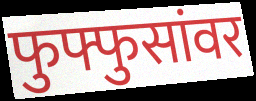
फुफ्फुसांवर